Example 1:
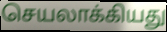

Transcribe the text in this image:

செயலாக்கியது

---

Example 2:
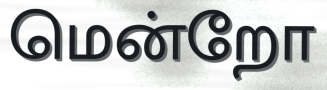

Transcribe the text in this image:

மென்றோ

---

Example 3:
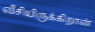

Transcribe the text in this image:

வீசியிருக்கிறான்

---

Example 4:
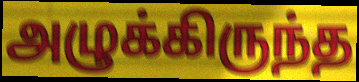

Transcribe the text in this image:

அழுக்கிருந்த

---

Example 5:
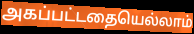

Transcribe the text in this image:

அகப்பட்டதையெல்லாம்